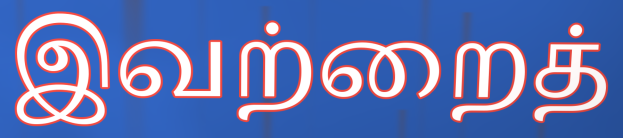
இவற்றைத்